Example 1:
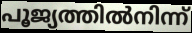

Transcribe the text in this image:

പൂജ്യത്തിൽനിന്ന്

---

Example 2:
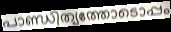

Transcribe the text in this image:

പാണ്ഡിത്യത്തോടൊപ്പം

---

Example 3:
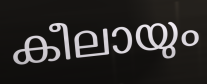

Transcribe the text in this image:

കീലായും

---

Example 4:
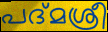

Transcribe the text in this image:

പദ്മശ്രീ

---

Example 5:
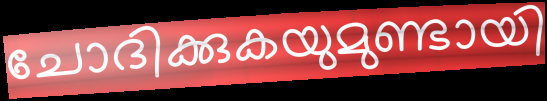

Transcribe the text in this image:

ചോദിക്കുകയുമുണ്ടായി